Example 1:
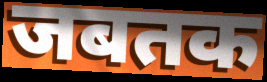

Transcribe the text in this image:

जबतक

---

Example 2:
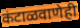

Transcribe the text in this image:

कंटाळवाणेही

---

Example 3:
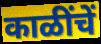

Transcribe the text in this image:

काळींचें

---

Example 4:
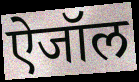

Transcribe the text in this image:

ऐजॉल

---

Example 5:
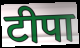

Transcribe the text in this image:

टीपा